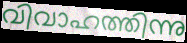
വിവാഹത്തിന്നു